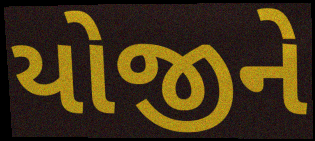
યોજીને